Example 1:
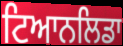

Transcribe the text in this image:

ਟਿਆਨਲਿਡਾ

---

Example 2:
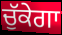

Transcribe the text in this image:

ਚੁੱਕੇਗਾ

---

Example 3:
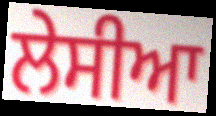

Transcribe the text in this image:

ਲੇਸੀਆ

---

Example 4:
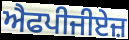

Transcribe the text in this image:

ਐਫਪੀਜੀਏਜ਼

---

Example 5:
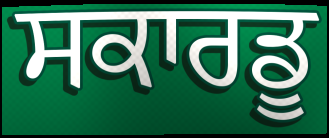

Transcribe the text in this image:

ਸਕਾਰਡੂ